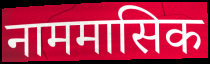
नाममासिक